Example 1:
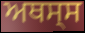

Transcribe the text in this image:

ਅਥਸ੍ਸ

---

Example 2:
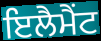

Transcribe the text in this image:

ਇਲੈਮੈਂਟ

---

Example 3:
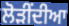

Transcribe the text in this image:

ਲੋੜੀਂਦੀਆ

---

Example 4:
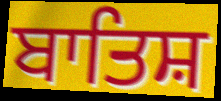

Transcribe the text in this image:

ਬਾਤਿਸ਼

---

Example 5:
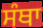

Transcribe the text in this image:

ਸੰਥਾ